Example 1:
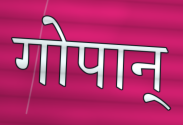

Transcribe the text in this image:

गोपान्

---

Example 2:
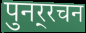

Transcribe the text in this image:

पुनर्रचन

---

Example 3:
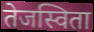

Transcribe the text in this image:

तेजस्विता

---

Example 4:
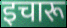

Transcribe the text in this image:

इचारू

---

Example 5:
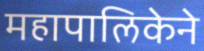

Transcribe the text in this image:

महापालिकेने